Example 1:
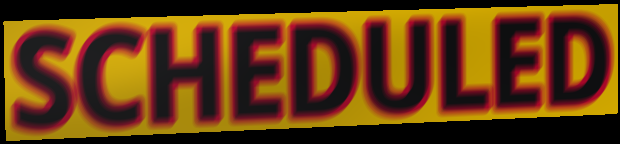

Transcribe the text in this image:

SCHEDULED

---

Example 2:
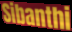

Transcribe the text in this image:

Sibanthi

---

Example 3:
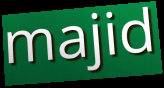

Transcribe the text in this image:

majid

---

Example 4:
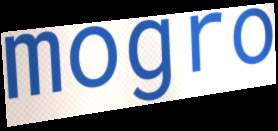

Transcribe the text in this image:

mogro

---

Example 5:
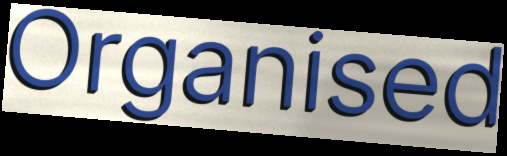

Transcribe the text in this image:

Organised